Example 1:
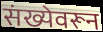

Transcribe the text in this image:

संख्येवरून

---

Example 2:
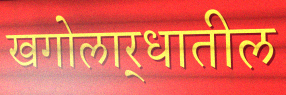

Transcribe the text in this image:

खगोलार्धातील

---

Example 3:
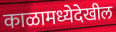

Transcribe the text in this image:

काळामध्येदेखील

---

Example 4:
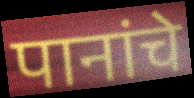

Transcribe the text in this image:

पानांचे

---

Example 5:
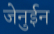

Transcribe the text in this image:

जेनुईन